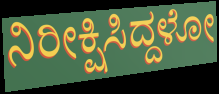
ನಿರೀಕ್ಷಿಸಿದ್ದಳೋ